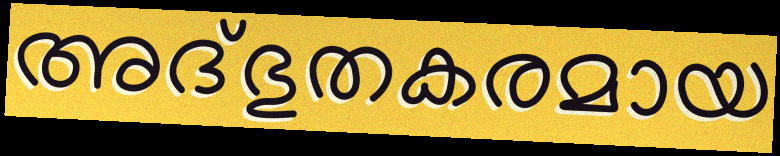
അദ്ഭുതകരമായ